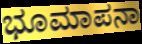
ಭೂಮಾಪನಾ